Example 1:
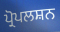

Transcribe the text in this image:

ਪ੍ਰੋਪਲਸ਼ਨ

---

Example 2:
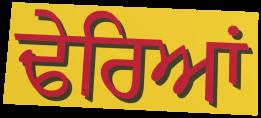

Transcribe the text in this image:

ਢੇਰਿਆਂ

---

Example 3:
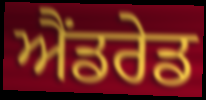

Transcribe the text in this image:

ਐਂਡਰੇਡ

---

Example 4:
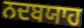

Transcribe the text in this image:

ਨਦਬਯਾਹ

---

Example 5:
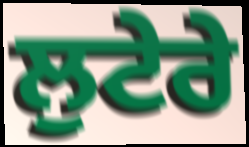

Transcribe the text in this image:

ਲੁਟੇਰੇ